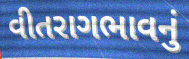
વીતરાગભાવનું